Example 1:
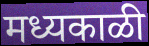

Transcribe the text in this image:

मध्यकाळी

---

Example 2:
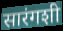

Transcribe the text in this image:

सारंगशी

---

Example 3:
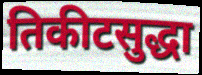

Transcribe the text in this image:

तिकीटसुद्धा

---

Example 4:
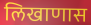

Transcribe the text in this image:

लिखाणास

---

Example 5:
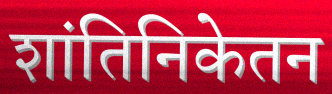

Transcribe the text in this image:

शांतिनिकेतन